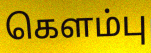
கௌம்பு